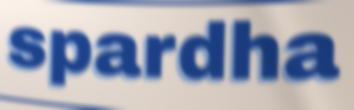
spardha